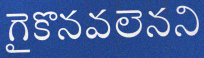
గైకొనవలెనని